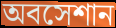
অবসেশান